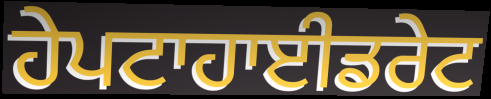
ਹੇਪਟਾਹਾਈਡਰੇਟ